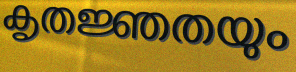
കൃതജ്ഞതയും